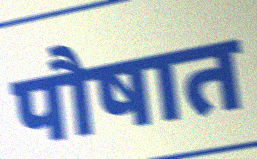
पौषात